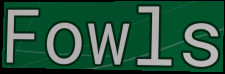
Fowls